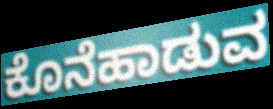
ಕೊನೆಹಾಡುವ